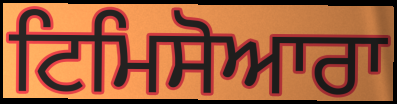
ਟਿਮਿਸੋਆਰਾ